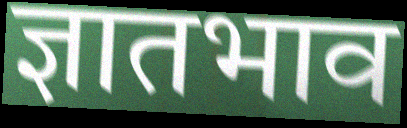
ज्ञातभाव